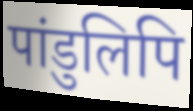
पांडुलिपि